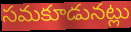
సమకూడునట్లు